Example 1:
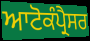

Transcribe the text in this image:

ਆਟੋਕੰਪ੍ਰੈਸਰ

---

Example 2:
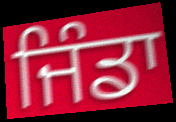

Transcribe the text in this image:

ਜਿੰਡਾ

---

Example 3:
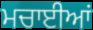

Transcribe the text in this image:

ਮਚਾਈਆਂ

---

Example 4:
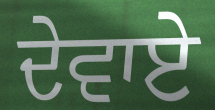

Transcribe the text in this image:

ਦੇਵਾਏ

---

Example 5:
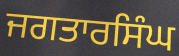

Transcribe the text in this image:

ਜਗਤਾਰਸਿੰਘ